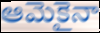
ఆమెకైనా